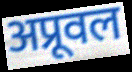
अप्रूवल